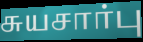
சுயசார்பு